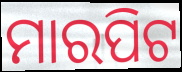
ମାରପିଟ